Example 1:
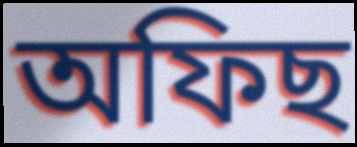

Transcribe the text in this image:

অফিছ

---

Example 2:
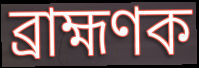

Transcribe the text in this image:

ব্ৰাহ্মণক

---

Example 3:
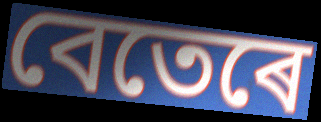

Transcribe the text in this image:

বেতেৰে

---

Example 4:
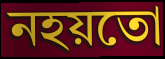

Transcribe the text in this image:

নহয়তো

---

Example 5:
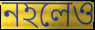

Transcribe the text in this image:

নহলেও